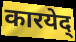
कारयेद्